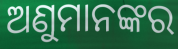
ଅଣୁମାନଙ୍କର